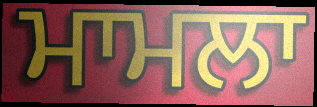
ਮਾਮਲਾ